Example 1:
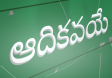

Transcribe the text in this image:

ఆదికవయే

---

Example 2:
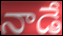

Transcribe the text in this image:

నాడే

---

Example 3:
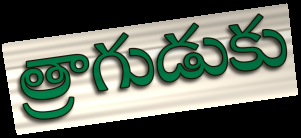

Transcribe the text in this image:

త్రాగుడుకు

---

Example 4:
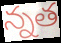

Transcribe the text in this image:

న్నత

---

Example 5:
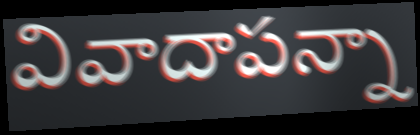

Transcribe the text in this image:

వివాదాపన్నా